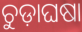
ଚୁଡ଼ାଘଷା